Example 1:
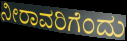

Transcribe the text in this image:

ನೀರಾವರಿಗೆಂದು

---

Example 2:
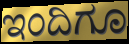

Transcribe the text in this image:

ಇಂದಿಗೂ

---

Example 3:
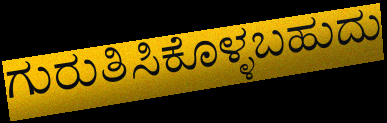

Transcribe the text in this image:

ಗುರುತಿಸಿಕೊಳ್ಳಬಹುದು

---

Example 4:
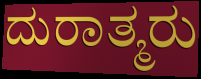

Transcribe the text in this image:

ದುರಾತ್ಮರು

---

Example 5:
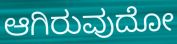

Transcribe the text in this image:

ಆಗಿರುವುದೋ